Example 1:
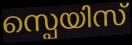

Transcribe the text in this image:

സ്പെയിസ്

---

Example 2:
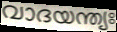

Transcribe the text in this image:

വാദയന്ത്യഃ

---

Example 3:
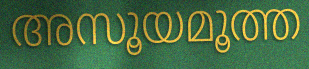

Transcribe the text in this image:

അസൂയമൂത്ത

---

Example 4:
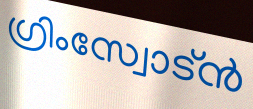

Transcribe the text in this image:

ഗ്രിംസ്വോട്ൻ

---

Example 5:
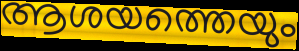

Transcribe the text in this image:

ആശയത്തെയും